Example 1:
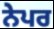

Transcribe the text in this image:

ਨੇਪਰ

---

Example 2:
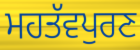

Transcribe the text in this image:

ਮਹਤੱਵਪੁਰਣ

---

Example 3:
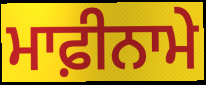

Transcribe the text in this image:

ਮਾਫ਼ੀਨਾਮੇ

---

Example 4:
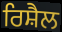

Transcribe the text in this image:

ਰਿਸ਼ੈਲ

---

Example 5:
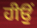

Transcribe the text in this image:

ਹੀਉਂ